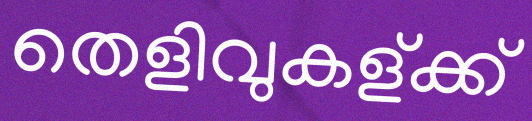
തെളിവുകള്ക്ക്